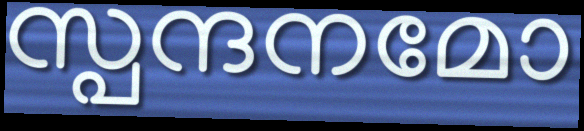
സ്പന്ദനമോ